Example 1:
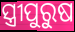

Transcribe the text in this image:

ସ୍ତ୍ରୀପୁରୁଷ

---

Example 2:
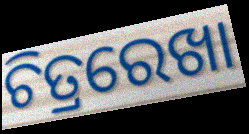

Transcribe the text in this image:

ଚିତ୍ରରେଖା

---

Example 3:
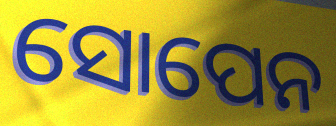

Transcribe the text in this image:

ସୋପେନ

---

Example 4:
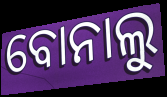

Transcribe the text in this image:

ବୋନାଲୁ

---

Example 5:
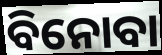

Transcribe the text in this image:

ବିନୋବା